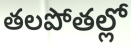
తలపోతల్లో